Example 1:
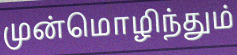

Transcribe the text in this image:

முன்மொழிந்தும்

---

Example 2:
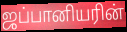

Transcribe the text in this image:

ஜப்பானியரின்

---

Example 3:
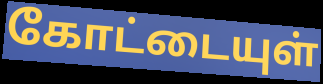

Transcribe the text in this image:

கோட்டையுள்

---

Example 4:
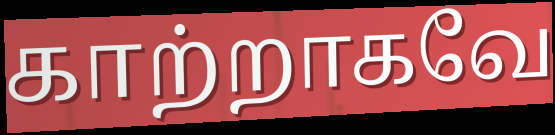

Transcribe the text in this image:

காற்றாகவே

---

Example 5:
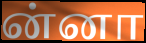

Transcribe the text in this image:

ன்னா